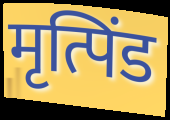
मृत्पिंड